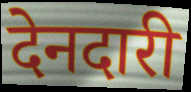
देनदारी